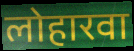
लोहारवा